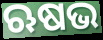
ଋଷଭ